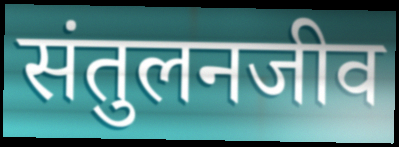
संतुलनजीव